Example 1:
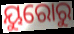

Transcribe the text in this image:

ୟୁରୋରୁ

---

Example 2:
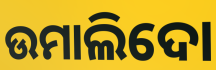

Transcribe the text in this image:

ଉମାଲିଦୋ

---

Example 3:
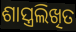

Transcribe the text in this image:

ଶାସ୍ତ୍ରଲିଖିତ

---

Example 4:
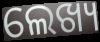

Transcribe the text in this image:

ଲେଖ୍ୟ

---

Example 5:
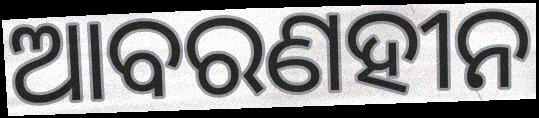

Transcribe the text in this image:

ଆବରଣହୀନ